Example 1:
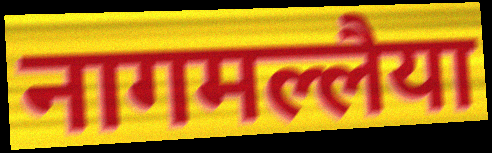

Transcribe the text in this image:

नागमल्लैया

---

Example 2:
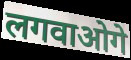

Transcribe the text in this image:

लगवाओगे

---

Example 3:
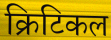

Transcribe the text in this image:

क्रिटिकल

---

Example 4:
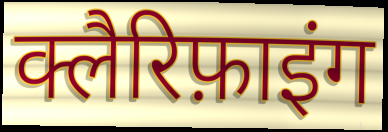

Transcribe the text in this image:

क्लैरिफ़ाइंग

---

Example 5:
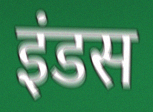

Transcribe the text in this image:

इंडस